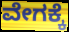
ವೇಗಕ್ಕೆ